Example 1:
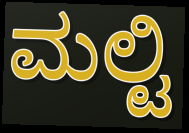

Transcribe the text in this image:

ಮಲ್ಟಿ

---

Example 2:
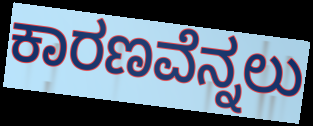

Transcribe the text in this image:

ಕಾರಣವೆನ್ನಲು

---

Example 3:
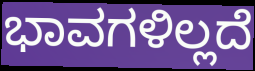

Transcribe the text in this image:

ಭಾವಗಳಿಲ್ಲದೆ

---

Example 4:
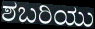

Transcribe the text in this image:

ಶಬರಿಯು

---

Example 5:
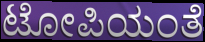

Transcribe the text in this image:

ಟೋಪಿಯಂತೆ